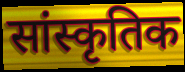
सांस्कृतिक